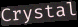
Crystal